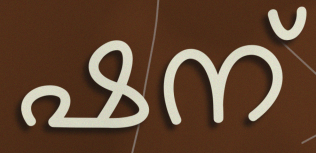
ഷന്